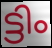
ട്ടിം